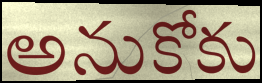
అనుకోకు